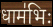
धाम॑भिः